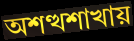
অশত্থশাখায়